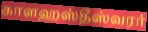
காளஹஸ்தீஸ்வரர்